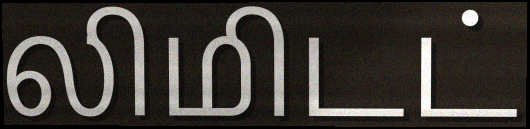
லிமிடட்